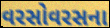
વરસોવરસના